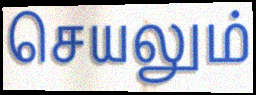
செயலும்